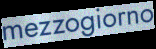
mezzogiorno